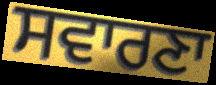
ਸਵਾਰਣਾ